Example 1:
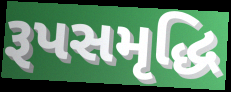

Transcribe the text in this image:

રૂપસમૃદ્ધિ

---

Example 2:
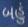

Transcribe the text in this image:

બહું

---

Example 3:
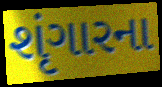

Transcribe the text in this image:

શૃંગારના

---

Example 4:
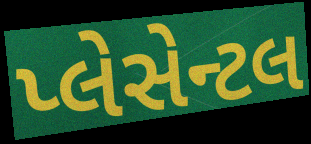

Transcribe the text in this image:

પ્લેસેન્ટલ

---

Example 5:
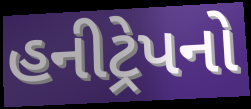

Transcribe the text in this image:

હનીટ્રેપનો